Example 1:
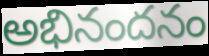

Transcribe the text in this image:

అభినందనం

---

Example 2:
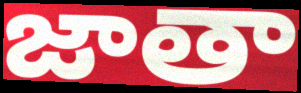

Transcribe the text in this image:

జాతా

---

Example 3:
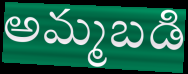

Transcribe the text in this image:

అమ్మబడి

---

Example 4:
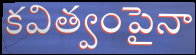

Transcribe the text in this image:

కవిత్వంపైనా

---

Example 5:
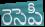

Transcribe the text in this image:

రెసెపీ